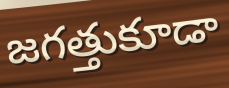
జగత్తుకూడా